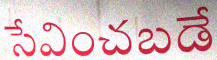
సేవించబడే